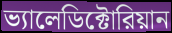
ভ্যালেডিক্টোরিয়ান